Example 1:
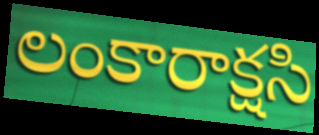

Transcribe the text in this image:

లంకారాక్షసి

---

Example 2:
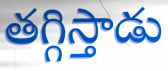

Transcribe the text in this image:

తగ్గిస్తాడు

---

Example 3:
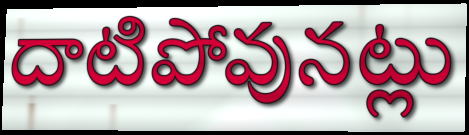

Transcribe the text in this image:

దాటిపోవునట్లు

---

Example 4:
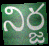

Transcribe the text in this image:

నిర్జ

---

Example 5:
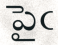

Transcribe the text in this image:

పైఁ